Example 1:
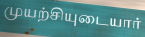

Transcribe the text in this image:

முயற்சியுடையார்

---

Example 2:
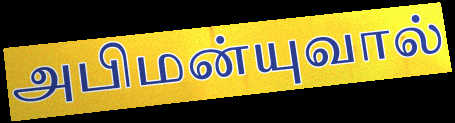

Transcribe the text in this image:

அபிமன்யுவால்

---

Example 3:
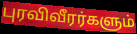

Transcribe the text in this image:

புரவிவீரர்களும்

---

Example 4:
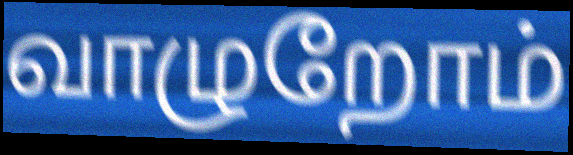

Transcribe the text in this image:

வாழுறோம்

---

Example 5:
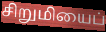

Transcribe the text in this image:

சிறுமியைப்